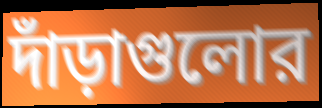
দাঁড়াগুলোর